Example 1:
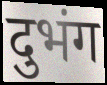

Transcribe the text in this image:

दुभंग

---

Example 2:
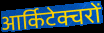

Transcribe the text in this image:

आर्किटेक्चरों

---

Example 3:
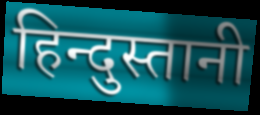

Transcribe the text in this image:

हिन्दुस्तानी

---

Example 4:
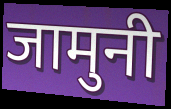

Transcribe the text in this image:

जामुनी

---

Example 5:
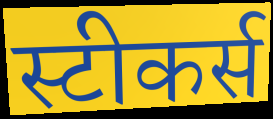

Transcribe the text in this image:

स्टीकर्स